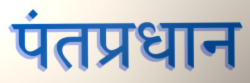
पंतप्रधान